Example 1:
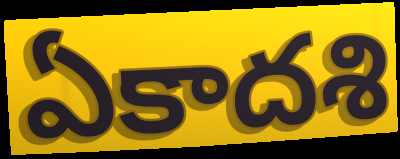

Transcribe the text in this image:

ఏకాదశి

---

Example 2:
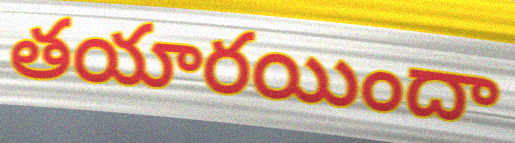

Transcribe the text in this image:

తయారయిందా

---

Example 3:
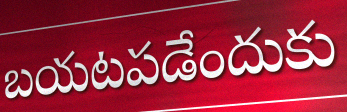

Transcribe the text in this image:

బయటపడేందుకు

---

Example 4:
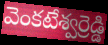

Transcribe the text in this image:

వెంకటేశ్వర్రెడ్డి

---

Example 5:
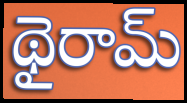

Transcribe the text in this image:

థైరామ్